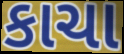
કાચા